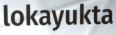
lokayukta